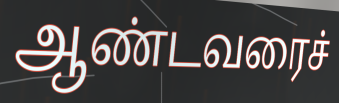
ஆண்டவரைச்